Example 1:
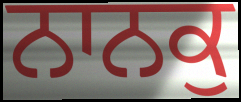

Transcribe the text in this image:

ਨਾਨਕੁ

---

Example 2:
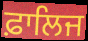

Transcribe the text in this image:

ਫ਼ਾਲਿਜ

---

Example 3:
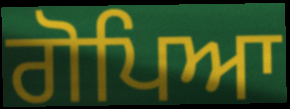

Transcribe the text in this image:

ਗੋਪਿਆ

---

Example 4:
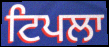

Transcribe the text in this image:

ਟਿਪਲਾ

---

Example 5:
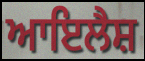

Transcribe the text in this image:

ਆਇਲੈਸ਼